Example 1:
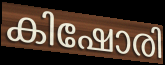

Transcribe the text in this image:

കിഷോരി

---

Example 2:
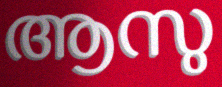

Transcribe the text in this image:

ആസു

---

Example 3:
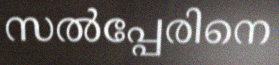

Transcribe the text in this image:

സൽപ്പേരിനെ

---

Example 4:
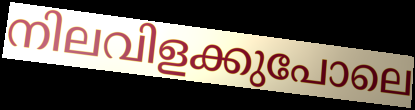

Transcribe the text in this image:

നിലവിളക്കുപോലെ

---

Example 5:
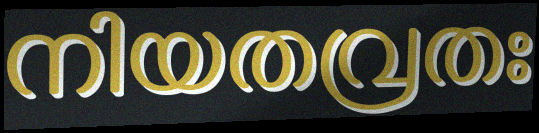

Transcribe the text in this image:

നിയതവ്രതഃ